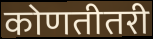
कोणतीतरी